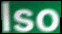
Iso